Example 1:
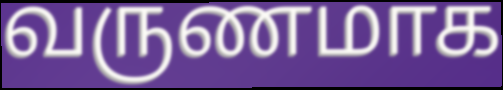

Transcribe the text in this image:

வருணமாக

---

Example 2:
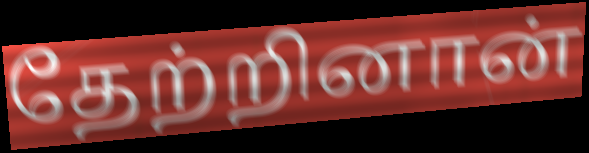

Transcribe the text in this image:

தேற்றினான்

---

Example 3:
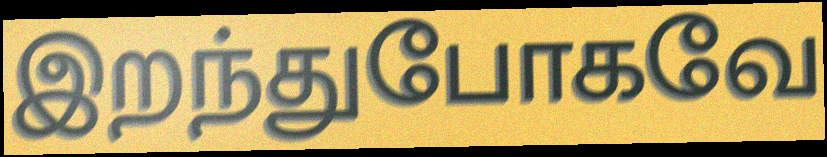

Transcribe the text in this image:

இறந்துபோகவே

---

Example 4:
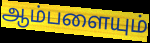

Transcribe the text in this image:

ஆம்பளையும்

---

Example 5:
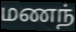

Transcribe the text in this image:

மணந்